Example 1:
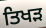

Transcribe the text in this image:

ਤਿਖੜ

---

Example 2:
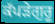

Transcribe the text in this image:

ਕੱਪੜੇਗੁਰੂ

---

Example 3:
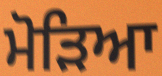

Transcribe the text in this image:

ਮੋੜਿਆ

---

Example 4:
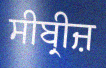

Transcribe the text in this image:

ਸੀਬ੍ਰੀਜ਼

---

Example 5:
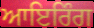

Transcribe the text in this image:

ਆਇਰਿੰਗ